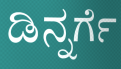
ಡಿನ್ನರ್ಗೆ